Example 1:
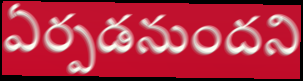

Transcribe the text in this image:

ఏర్పడనుందని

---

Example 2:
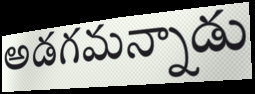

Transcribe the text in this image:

అడగమన్నాడు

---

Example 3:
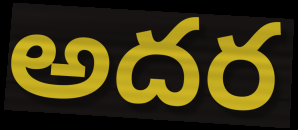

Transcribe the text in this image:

అదర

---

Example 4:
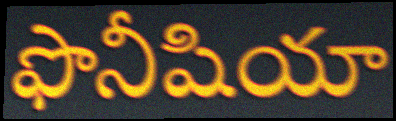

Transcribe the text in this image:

ఫొనీషియా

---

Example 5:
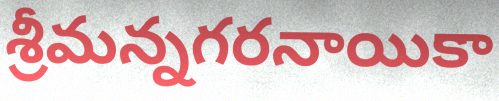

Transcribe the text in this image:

శ్రీమన్నగరనాయికా